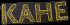
KAHE